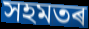
সহমতৰ